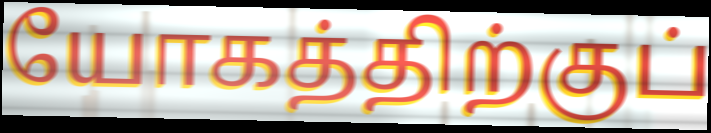
யோகத்திற்குப்